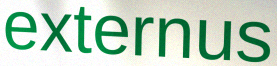
externus